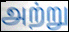
அற்று